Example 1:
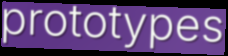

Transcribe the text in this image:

prototypes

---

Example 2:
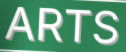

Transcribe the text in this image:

ARTS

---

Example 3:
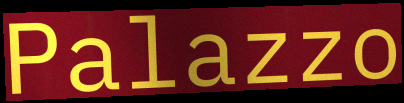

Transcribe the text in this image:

Palazzo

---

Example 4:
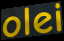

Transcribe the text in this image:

olei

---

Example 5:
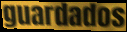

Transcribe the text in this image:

guardados